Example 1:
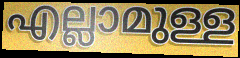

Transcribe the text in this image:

എല്ലാമുള്ള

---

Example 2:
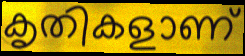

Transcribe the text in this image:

കൃതികളാണ്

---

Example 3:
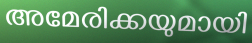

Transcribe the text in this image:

അമേരിക്കയുമായി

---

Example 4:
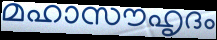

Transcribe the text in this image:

മഹാസൗഹൃദം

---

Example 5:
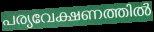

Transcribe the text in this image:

പര്യവേക്ഷണത്തിൽ